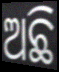
ଅଛି